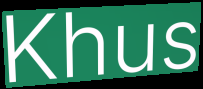
Khus